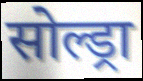
सोल्ड्रा